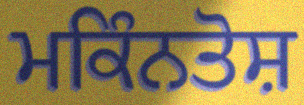
ਮਕਿੰਨਤੋਸ਼